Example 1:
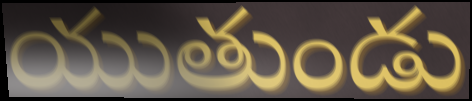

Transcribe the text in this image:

యుతుండు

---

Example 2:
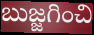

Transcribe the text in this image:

బుజ్జగించి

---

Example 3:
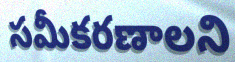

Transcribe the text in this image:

సమీకరణాలని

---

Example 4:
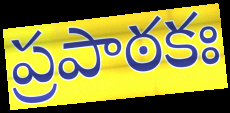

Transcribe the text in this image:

ప్రపాఠకః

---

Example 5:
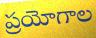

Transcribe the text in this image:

ప్రయోగాల